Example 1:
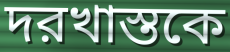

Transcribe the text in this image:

দরখাস্তকে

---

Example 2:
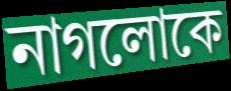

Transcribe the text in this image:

নাগলোকে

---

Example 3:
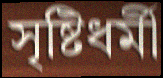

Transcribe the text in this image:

সৃষ্টিধর্মী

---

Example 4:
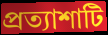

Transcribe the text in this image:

প্রত্যাশাটি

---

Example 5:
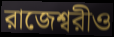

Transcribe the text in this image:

রাজেশ্বরীও